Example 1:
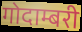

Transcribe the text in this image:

गोदाम्बरी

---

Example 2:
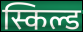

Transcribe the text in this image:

स्किल्ड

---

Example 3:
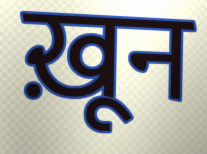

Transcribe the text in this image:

ख़ून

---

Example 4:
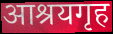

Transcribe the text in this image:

आश्रयगृह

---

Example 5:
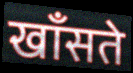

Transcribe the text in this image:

खाँसते